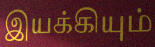
இயக்கியும்